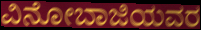
ವಿನೋಬಾಜಿಯವರ